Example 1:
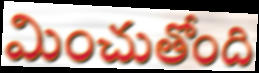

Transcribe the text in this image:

మించుతోంది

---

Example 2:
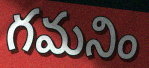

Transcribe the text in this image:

గమనిం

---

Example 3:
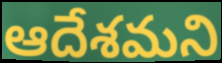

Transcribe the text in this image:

ఆదేశమని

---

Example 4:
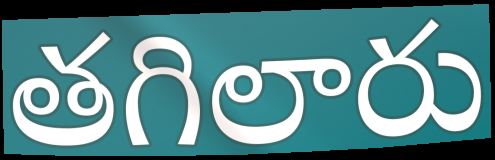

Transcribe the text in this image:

తగిలారు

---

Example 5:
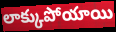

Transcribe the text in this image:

లాక్కుపోయాయి